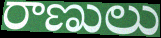
రాణులు